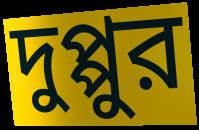
দুপ্পুর